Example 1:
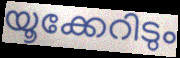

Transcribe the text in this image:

യൂക്കേറിടും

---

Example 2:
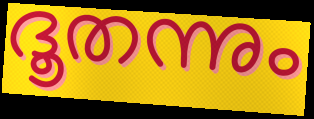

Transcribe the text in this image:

ദൂതന്നും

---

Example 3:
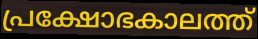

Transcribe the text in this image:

പ്രക്ഷോഭകാലത്ത്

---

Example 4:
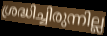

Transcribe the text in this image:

ശ്രദ്ധിച്ചിരുന്നില്ല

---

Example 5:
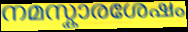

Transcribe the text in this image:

നമസ്കാരശേഷം